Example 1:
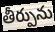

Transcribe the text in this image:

తీర్పును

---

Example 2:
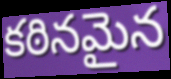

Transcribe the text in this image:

కఠినమైన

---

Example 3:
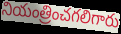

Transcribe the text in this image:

నియంత్రించగలిగారు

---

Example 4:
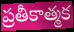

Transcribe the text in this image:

ప్రతీకాత్మక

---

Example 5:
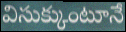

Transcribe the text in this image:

విసుక్కుంటూనే